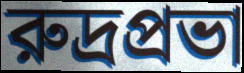
রুদ্রপ্রভা